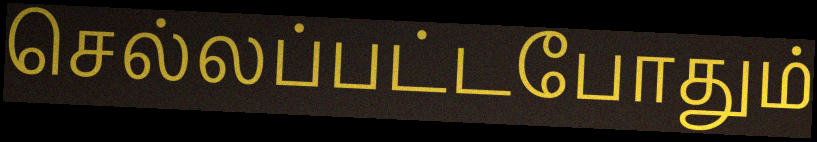
செல்லப்பட்டபோதும்